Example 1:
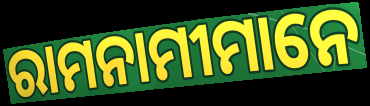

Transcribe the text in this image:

ରାମନାମୀମାନେ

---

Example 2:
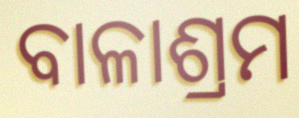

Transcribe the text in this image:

ବାଳାଶ୍ରମ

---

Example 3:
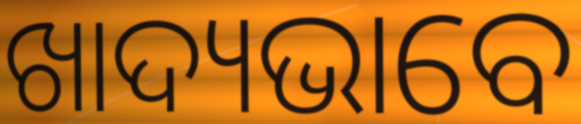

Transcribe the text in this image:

ଖାଦ୍ୟଭାବେ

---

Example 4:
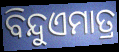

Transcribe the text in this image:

ବିନ୍ଦୁଏମାତ୍ର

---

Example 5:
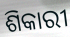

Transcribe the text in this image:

ଶିକାରୀ